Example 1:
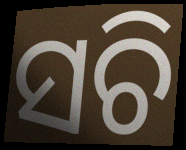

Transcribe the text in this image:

ସଚି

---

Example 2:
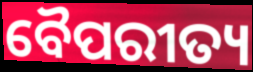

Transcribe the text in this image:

ବୈପରୀତ୍ୟ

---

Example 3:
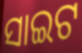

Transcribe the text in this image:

ସାଇଟ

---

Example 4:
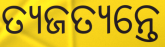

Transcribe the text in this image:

ତ୍ୟଜତ୍ୟନ୍ତେ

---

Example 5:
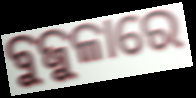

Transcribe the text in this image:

ବୁଜୁଳାରେ